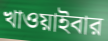
খাওয়াইবার